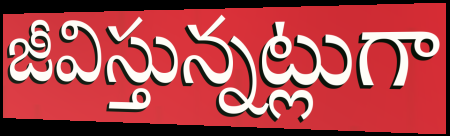
జీవిస్తున్నట్లుగా